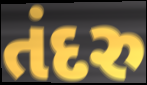
તંદરુ